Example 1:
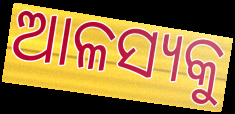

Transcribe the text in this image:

ଆଳସ୍ୟକୁ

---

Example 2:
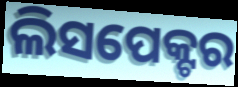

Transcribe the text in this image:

ଲିସପେକ୍ଟର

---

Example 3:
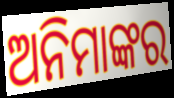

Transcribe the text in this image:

ଅନିମାଙ୍କର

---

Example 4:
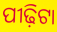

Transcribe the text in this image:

ପୀଢ଼ିଟା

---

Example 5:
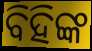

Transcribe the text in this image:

ବିହିଙ୍କ